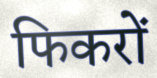
फिकरों